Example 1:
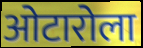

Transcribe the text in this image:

ओटारोला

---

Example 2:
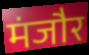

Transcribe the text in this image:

मंजौर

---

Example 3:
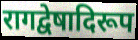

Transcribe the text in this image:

रागद्वेषादिरूप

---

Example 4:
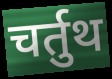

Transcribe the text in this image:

चर्तुथ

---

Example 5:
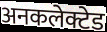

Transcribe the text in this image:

अनकलेक्टेड